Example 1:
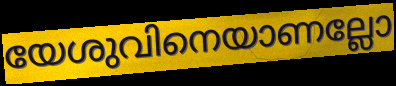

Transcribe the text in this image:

യേശുവിനെയാണല്ലോ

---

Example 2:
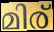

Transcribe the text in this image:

മിര്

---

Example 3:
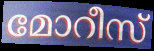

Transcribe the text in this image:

മോറീസ്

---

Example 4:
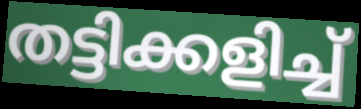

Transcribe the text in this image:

തട്ടിക്കളിച്ച്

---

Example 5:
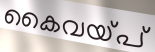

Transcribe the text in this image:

കൈവയ്പ്